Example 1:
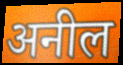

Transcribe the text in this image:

अनील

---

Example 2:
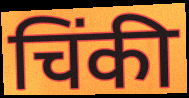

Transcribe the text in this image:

चिंकी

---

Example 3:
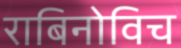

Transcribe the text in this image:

राबिनोविच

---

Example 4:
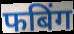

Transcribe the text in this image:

फबिंग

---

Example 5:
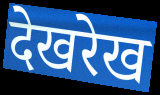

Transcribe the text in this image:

देखरेख